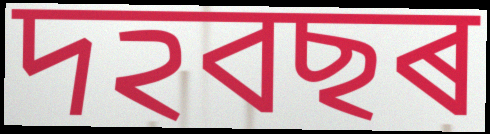
দহবছৰ